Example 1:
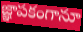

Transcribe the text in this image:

జ్ఞాపకంగానూ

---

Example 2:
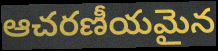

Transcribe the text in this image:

ఆచరణీయమైన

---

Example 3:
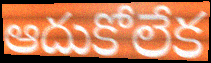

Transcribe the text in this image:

ఆదుకోలేక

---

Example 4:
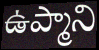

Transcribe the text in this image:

ఉప్మాని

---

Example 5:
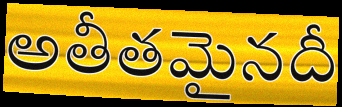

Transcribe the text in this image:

అతీతమైనదీ